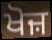
ਖੋਜ਼